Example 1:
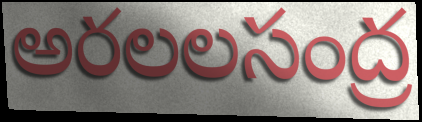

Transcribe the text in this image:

అరలలసంద్ర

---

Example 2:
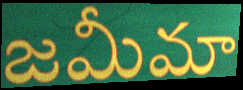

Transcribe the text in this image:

జమీమా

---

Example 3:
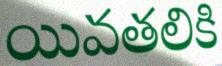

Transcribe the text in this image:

యివతలికి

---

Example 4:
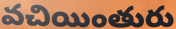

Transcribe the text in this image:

వచియింతురు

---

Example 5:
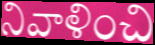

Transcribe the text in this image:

నివాళించి